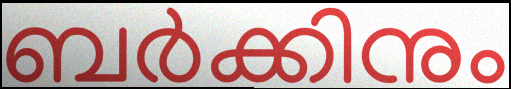
ബർക്കിനും